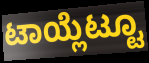
ಟಾಯ್ಲೆಟ್ಟೂ